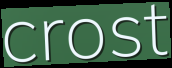
crost